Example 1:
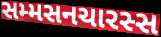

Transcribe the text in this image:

સમ્મસનચારસ્સ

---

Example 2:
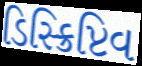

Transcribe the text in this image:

ડિસ્ક્રિપ્ટિવ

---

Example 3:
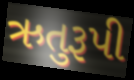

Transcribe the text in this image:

ઋતુરૂપી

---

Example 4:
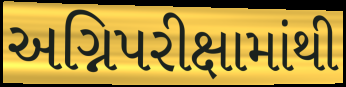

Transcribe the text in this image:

અગ્નિપરીક્ષામાંથી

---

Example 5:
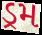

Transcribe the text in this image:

ડ્રમ